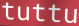
tuttu